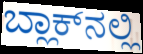
ಬ್ಲಾಕ್‌ನಲ್ಲಿ